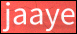
jaaye